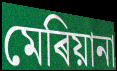
মেৰিয়ানা